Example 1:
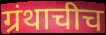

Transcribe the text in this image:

ग्रंथाचीच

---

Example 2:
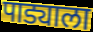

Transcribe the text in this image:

पाड्याला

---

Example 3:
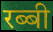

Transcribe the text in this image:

रब्बी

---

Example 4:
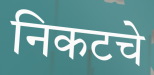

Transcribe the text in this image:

निकटचे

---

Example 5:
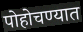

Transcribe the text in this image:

पोहोचण्यात